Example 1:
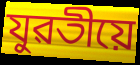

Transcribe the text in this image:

যুৱতীয়ে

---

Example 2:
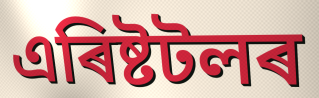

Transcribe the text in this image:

এৰিষ্টটলৰ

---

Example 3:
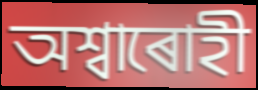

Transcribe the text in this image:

অশ্বাৰোহী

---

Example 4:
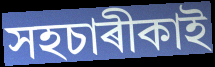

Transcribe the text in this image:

সহচাৰীকাই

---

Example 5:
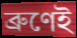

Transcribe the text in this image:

ব্ৰুণেই